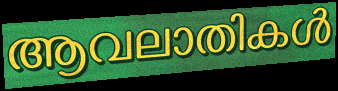
ആവലാതികൾ